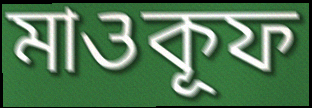
মাওকূফ